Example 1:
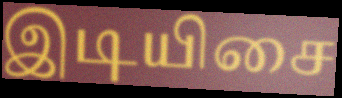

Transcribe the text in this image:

இடியிசை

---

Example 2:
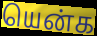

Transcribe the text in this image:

யென்க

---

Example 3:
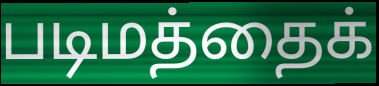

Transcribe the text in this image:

படிமத்தைக்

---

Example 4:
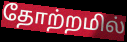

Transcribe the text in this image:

தோற்றமில்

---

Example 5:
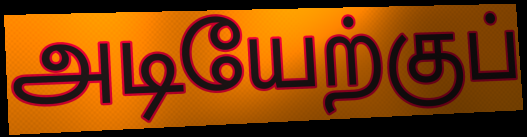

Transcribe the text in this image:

அடியேற்குப்